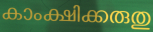
കാംക്ഷിക്കരുതു